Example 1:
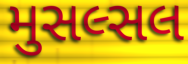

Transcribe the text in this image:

મુસલ્સલ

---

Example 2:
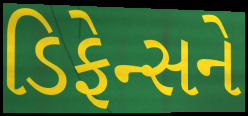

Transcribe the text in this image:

ડિફેન્સને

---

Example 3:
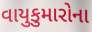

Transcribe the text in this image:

વાયુકુમારોના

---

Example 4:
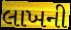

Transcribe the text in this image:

લાખની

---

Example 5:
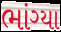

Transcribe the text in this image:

ભાંગ્યા